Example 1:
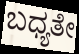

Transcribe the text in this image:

ಬಧ್ಯತೇ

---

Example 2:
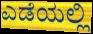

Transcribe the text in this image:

ಎಡೆಯಲ್ಲಿ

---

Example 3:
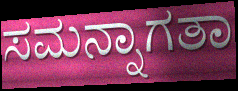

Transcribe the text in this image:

ಸಮನ್ನಾಗತಾ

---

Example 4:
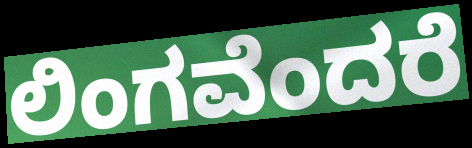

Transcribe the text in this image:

ಲಿಂಗವೆಂದರೆ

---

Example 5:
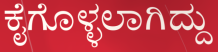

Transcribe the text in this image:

ಕೈಗೊಳ್ಳಲಾಗಿದ್ದು